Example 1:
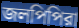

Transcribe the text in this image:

জলপিপিরা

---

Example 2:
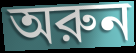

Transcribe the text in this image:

অরুন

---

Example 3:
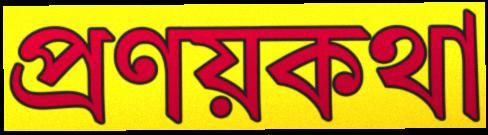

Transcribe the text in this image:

প্রণয়কথা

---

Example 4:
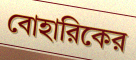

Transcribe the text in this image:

বোহারিকের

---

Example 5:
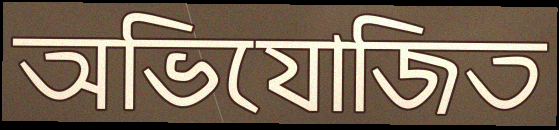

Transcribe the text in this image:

অভিযোজিত